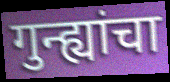
गुन्ह्यांचा